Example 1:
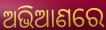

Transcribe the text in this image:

ଅଭିଆଣରେ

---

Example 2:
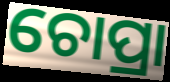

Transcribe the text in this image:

ଚୋପ୍ରା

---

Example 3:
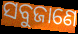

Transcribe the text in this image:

ସବୁଜାଣେ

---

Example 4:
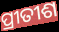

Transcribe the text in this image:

ପ୍ରୀତୀଶ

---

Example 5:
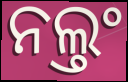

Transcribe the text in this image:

ନଲ୍ତଂ